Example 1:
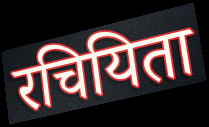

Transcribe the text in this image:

रचियिता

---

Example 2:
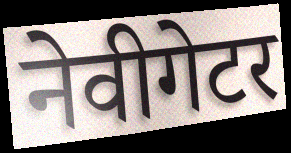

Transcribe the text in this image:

नेवीगेटर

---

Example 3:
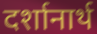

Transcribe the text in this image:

दर्शानार्थ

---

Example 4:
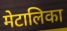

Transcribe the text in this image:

मेटालिका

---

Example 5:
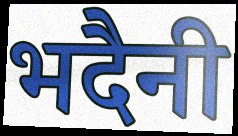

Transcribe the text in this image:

भदैनी